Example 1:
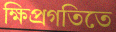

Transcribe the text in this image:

ক্ষিপ্রগতিতে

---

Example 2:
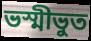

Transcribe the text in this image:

ভস্মীভুত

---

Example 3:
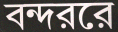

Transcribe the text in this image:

বন্দররে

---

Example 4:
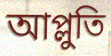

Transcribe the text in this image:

আপ্লুতি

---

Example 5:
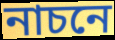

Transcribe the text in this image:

নাচনে